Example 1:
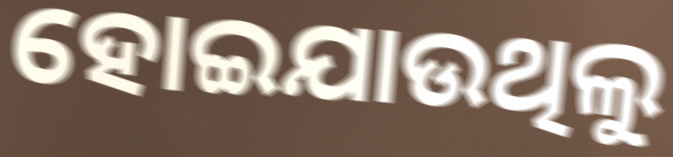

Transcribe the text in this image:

ହୋଇଯାଉଥିଲୁ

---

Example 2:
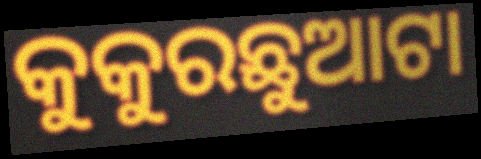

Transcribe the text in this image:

କୁକୁରଛୁଆଟା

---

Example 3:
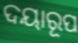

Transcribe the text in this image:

ଦୟାରୂପ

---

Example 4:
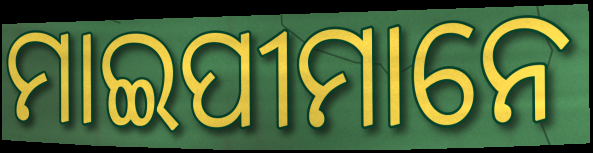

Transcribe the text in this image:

ମାଇପୀମାନେ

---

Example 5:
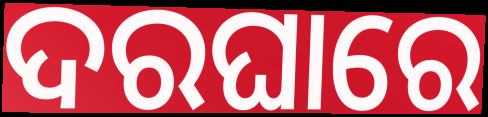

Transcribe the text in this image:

ଦରଘାରେ